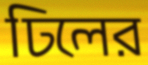
ঢিলের